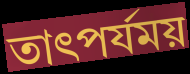
তাৎপর্যময়